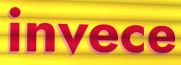
invece